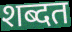
शब्दत